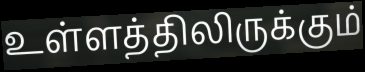
உள்ளத்திலிருக்கும்